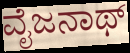
ವೈಜನಾಥ್